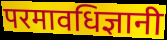
परमावधिज्ञानी